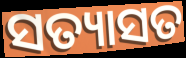
ସତ୍ୟାସତ